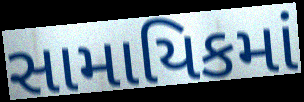
સામાયિકમાં